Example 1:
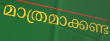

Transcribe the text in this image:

മാത്രമാക്കണ്ട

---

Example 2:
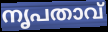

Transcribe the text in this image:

നൃപതാവ്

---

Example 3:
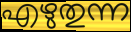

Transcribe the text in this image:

എഴുതുന്ന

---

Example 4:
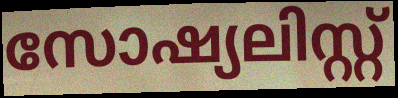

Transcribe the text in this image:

സോഷ്യലിസ്റ്റ്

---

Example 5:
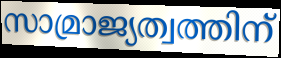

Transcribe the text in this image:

സാമ്രാജ്യത്വത്തിന്